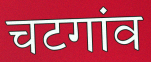
चटगांव